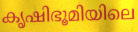
കൃഷിഭൂമിയിലെ